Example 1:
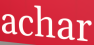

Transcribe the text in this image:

achar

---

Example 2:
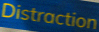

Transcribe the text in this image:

Distraction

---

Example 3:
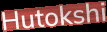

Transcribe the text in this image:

Hutokshi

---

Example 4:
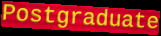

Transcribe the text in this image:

Postgraduate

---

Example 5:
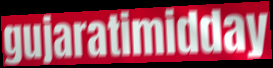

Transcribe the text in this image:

gujaratimidday